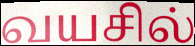
வயசில்